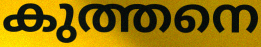
കുത്തനെ